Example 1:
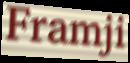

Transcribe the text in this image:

Framji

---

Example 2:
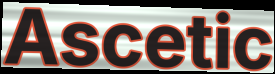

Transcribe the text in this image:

Ascetic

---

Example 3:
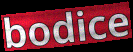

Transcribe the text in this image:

bodice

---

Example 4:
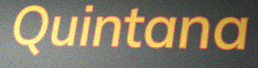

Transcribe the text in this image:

Quintana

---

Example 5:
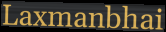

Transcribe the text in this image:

Laxmanbhai